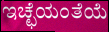
ಇಚ್ಛೆಯಂತೆಯೆ